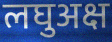
लघुअक्ष